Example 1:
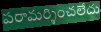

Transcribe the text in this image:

పరామర్శించలేదు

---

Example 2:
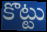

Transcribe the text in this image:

కొట్టు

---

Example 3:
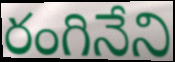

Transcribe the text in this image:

రంగినేని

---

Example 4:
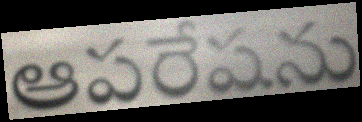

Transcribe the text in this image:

ఆపరేషను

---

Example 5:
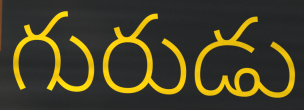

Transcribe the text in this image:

గురుడు